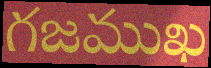
గజముఖ